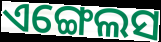
ଏଙ୍ଗେଲସ